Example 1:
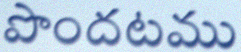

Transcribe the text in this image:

పొందటము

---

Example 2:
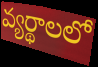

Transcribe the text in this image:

వ్యర్థాలలో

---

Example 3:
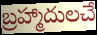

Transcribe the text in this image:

బ్రహ్మాదులచే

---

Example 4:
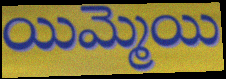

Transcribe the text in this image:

యిమ్మెయి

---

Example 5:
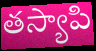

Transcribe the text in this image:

తస్యాపి